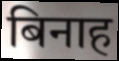
बिनाह